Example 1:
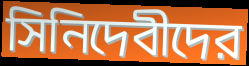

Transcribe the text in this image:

সিনিদেবীদের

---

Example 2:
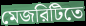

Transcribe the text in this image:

মেজরিটিতে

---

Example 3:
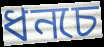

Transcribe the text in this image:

ধনচে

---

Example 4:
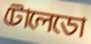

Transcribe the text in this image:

টোলেডো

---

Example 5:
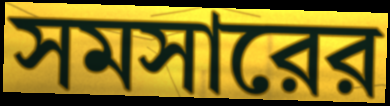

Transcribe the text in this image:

সমসারের